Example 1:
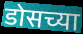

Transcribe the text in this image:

डोसच्या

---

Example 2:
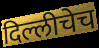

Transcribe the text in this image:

दिल्लीचेच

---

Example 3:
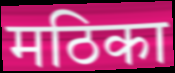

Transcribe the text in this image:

मठिका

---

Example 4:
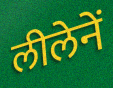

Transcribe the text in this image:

लीलेनें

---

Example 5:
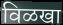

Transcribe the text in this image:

विळखा